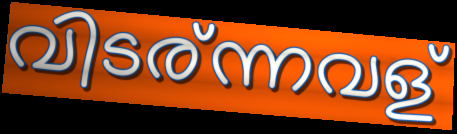
വിടര്ന്നവള്